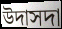
উদাসদা